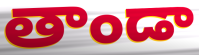
తాండా